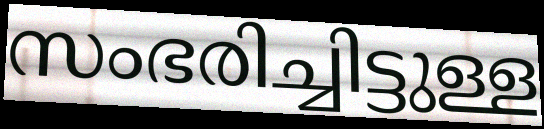
സംഭരിച്ചിട്ടുള്ള